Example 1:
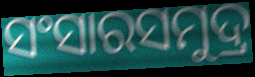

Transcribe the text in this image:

ସଂସାରସମୁଦ୍ର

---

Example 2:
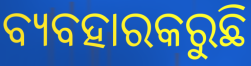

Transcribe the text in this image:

ବ୍ୟବହାରକରୁଛି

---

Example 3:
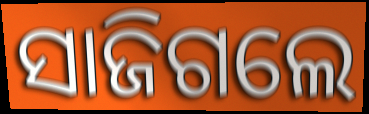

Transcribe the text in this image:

ସାଜିଗଲେ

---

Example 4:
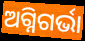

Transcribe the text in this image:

ଅଗ୍ନିଗର୍ଭା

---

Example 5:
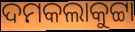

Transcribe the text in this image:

ଦମକଲାକୁଟ୍ଟା